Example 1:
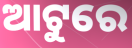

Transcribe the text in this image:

ଆଟୁରେ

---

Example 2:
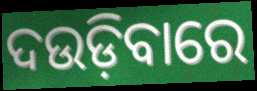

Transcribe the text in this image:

ଦଉଡ଼ିବାରେ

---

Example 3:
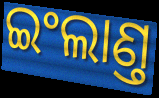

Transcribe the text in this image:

ଇଂଲାଣ୍ତ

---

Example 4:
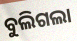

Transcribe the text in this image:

ବୁଲିଗଲା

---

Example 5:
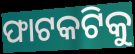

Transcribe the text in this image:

ଫାଟକଟିକୁ